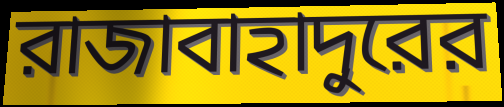
রাজাবাহাদুরের